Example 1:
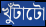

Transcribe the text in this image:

খুঁটাটো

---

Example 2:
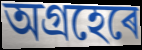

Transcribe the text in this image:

অগ্ৰহেৰে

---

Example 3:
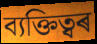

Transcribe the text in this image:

ব্যক্তিত্বৰ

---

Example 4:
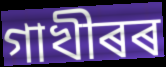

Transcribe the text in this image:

গাখীৰৰ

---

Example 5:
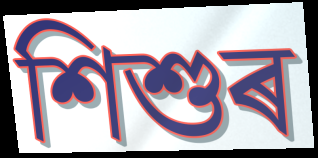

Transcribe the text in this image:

শিশুৰ